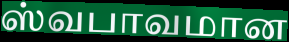
ஸ்வபாவமான